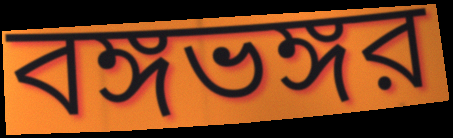
বঙ্গভঙ্গর